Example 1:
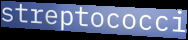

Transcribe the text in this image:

streptococci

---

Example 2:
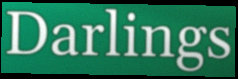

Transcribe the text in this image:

Darlings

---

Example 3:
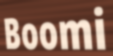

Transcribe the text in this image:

Boomi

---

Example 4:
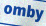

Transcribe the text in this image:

omby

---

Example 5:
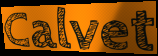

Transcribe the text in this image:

Calvet